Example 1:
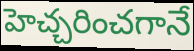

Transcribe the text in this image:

హెచ్చరించగానే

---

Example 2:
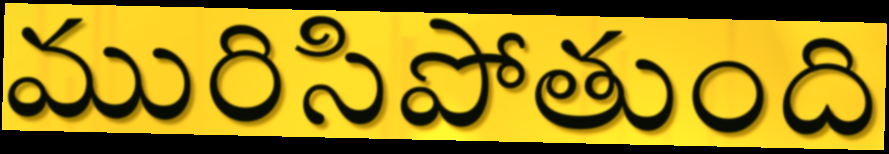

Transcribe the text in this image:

మురిసిపోతుంది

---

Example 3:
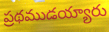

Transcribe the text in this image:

ప్రథముడయ్యారు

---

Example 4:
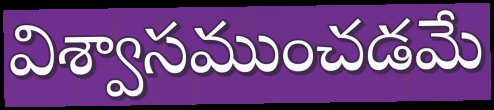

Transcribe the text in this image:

విశ్వాసముంచడమే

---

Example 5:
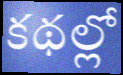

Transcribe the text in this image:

కథల్లో